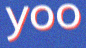
yoo